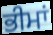
ਭੀਮਾਂ